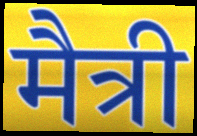
मैत्री